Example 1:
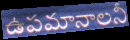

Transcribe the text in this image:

ఉపమానాలనీ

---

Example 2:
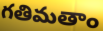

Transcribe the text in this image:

గతిమతాం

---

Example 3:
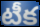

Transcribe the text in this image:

టీక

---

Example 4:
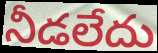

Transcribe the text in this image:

నీడలేదు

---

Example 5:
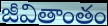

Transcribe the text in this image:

జీవితాంతం